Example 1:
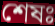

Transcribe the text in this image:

শেষঃ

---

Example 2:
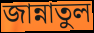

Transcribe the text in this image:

জান্নাতুল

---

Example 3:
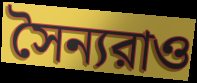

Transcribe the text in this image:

সৈন্যরাও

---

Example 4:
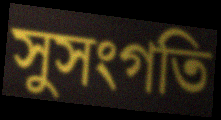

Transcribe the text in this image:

সুসংগতি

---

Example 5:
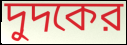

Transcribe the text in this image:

দুদকের